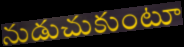
నుడుచుకుంటూ